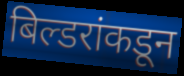
बिल्डरांकडून